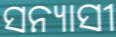
ସନ୍ଯାସୀ